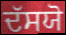
ਦੱਸਯੋ